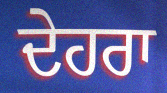
ਦੇਹਰਾ